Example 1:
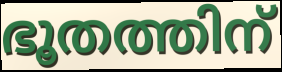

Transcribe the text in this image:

ഭൂതത്തിന്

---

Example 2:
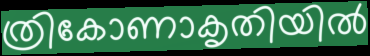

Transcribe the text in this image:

ത്രികോണാകൃതിയിൽ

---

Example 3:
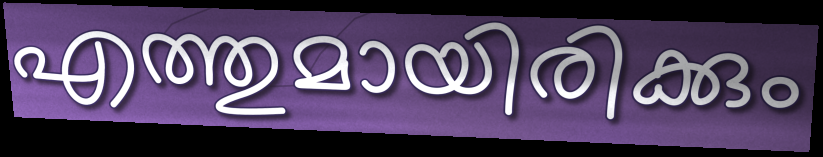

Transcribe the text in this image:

എത്തുമായിരിക്കും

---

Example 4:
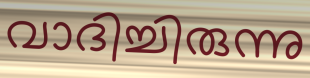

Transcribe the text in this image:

വാദിച്ചിരുന്നു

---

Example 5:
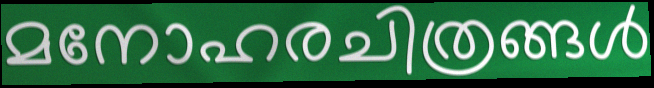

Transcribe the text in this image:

മനോഹരചിത്രങ്ങൾ